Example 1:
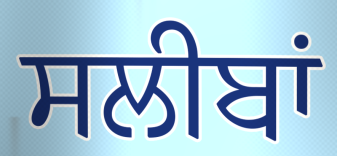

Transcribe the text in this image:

ਸਲੀਬਾਂ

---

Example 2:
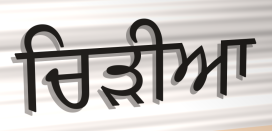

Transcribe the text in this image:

ਚਿੜੀਆ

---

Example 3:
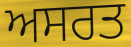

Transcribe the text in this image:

ਅਸਰਤ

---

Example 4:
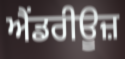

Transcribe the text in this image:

ਐਂਡਰੀਊਜ਼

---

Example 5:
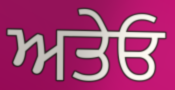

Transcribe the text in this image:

ਅਤੇਓ